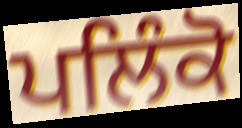
ਪਲਿੰਕੋ